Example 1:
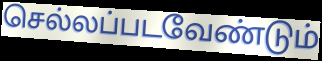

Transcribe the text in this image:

செல்லப்படவேண்டும்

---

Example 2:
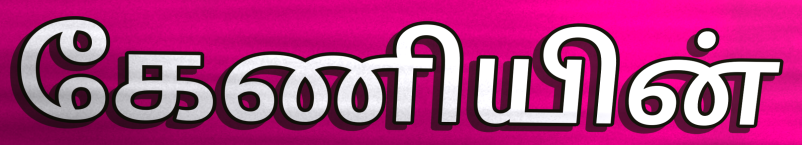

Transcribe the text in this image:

கேணியின்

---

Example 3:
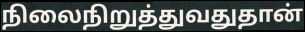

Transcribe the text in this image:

நிலைநிறுத்துவதுதான்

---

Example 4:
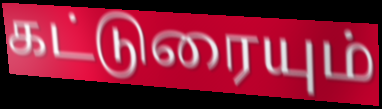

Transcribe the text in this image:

கட்டுரையும்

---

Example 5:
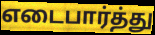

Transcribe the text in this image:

எடைபார்த்து